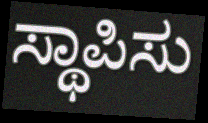
ಸ್ಥಾಪಿಸು